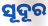
ସୂଦୂର